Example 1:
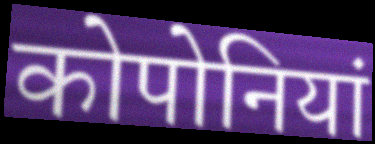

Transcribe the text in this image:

कोपोनियां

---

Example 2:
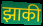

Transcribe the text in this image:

झाकी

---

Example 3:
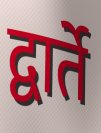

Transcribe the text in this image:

द्वार्ते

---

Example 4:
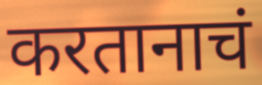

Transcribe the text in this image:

करतानाचं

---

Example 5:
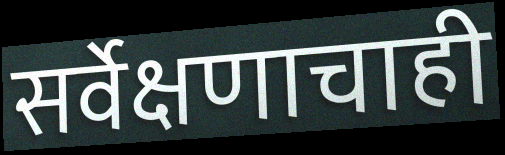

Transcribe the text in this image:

सर्वेक्षणाचाही